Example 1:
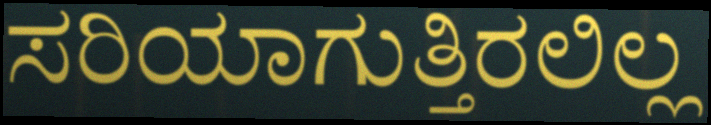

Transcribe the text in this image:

ಸರಿಯಾಗುತ್ತಿರಲಿಲ್ಲ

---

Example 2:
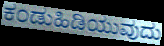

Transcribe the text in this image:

ಕಂಡುಹಿಡಿಯುವುದು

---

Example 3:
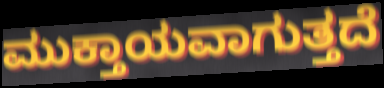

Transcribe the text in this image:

ಮುಕ್ತಾಯವಾಗುತ್ತದೆ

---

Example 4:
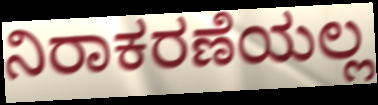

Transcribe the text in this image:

ನಿರಾಕರಣೆಯಲ್ಲ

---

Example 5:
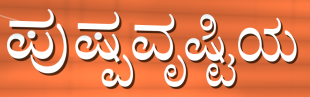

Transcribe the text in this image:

ಪುಷ್ಪವೃಷ್ಟಿಯ